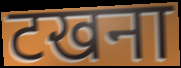
टखना